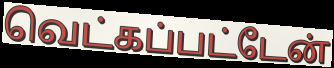
வெட்கப்பட்டேன்